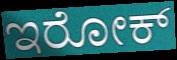
ಇರೋಕ್